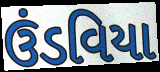
ઉંડવિયા